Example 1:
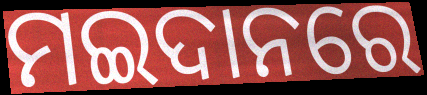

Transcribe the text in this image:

ମଇଦାନରେ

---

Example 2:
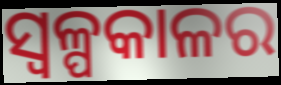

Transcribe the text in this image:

ସ୍ୱଳ୍ପକାଳର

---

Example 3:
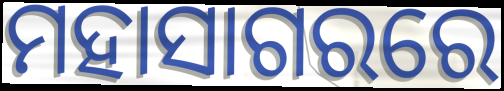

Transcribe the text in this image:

ମହାସାଗରରେ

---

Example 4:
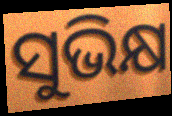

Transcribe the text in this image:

ସୁଭିକ୍ଷ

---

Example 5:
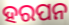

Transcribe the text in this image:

ହରପନ